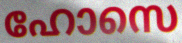
ഹോസെ